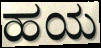
ಹಯ